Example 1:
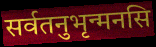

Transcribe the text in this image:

सर्वतनुभृन्मनसि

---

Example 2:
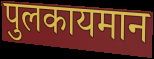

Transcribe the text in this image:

पुलकायमान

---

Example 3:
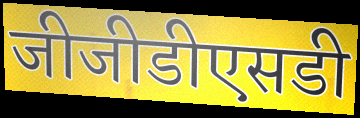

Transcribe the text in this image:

जीजीडीएसडी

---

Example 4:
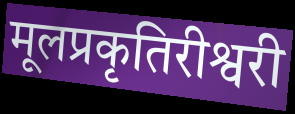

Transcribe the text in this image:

मूलप्रकृतिरीश्वरी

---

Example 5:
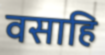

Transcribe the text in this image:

वसाहि